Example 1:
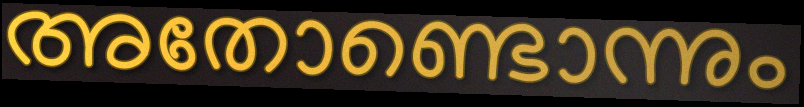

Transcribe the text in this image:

അതോണ്ടൊന്നും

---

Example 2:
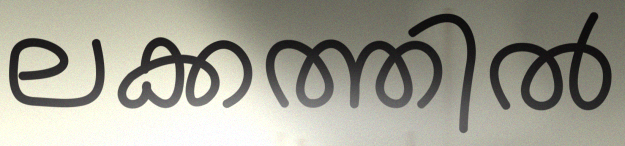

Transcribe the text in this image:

ലക്കത്തിൽ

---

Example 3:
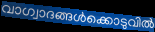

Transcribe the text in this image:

വാഗ്വാദങ്ങൾക്കൊടുവിൽ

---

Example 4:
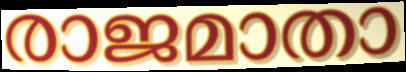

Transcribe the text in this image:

രാജമാതാ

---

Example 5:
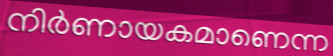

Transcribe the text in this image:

നിർണായകമാണെന്ന